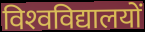
विश्‍वविद्यालयों